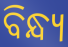
ବିନ୍ଧ୍ୟ